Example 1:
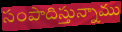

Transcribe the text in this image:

సంపాదిస్తున్నాము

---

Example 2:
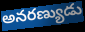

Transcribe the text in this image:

అనరణ్యుడు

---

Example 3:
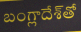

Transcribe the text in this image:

బంగ్లాదేశ్‌తో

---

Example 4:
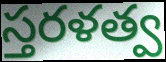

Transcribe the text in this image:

స్తరళత్వ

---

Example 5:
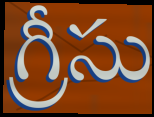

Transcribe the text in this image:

గ్రీసు